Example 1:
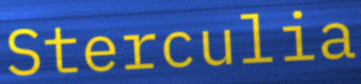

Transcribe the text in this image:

Sterculia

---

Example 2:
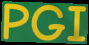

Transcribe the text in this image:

PGI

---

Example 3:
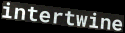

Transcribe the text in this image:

intertwine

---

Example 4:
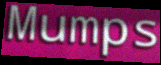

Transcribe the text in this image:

Mumps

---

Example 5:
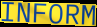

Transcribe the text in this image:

INFORM